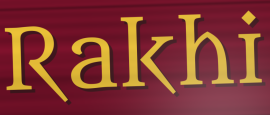
Rakhi